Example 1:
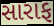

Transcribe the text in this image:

સારાફ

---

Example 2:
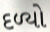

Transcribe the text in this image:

દળ્યો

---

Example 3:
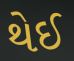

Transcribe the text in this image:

થેઈ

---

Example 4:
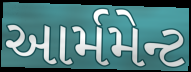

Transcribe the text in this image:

આર્મમેન્ટ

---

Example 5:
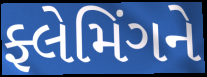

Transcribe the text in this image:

ફ્લેમિંગને